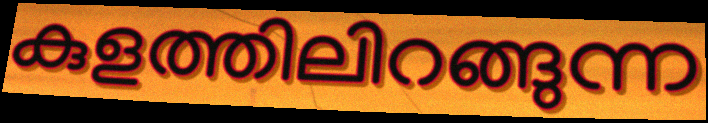
കുളത്തിലിറങ്ങുന്ന